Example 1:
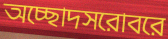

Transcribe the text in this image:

অচ্ছোদসরোবরে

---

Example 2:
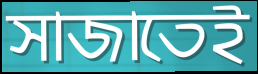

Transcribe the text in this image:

সাজাতেই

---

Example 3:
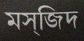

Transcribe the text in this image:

মস্জিদ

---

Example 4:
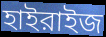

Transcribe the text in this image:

হাইরাইজ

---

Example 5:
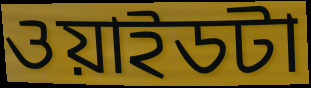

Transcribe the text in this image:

ওয়াইডটা